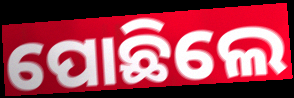
ପୋଛିଲେ